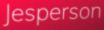
Jesperson